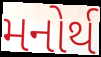
મનોર્થ